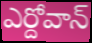
ఎర్దోవాన్